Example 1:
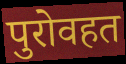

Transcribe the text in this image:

पुरोवहत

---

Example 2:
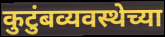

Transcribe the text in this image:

कुटुंबव्यवस्थेच्या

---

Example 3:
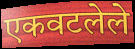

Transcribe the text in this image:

एकवटलेले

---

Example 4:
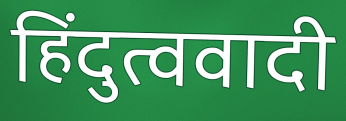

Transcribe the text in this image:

हिंदुत्ववादी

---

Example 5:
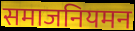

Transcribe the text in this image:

समाजनियमन